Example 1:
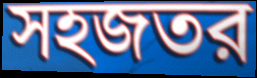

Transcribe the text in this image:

সহজতর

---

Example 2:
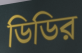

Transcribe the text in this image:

ডিডির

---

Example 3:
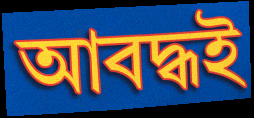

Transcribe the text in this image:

আবদ্ধই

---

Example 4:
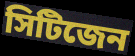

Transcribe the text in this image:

সিটিজেন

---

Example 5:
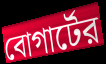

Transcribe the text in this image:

বোগার্টের